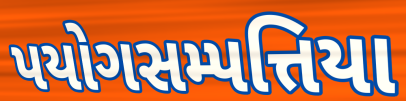
પયોગસમ્પત્તિયા